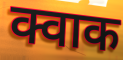
क्वाक